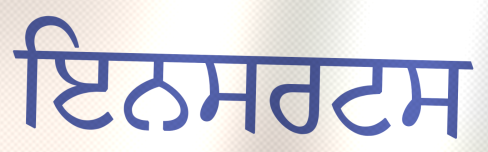
ਇਨਸਰਟਸ